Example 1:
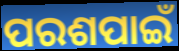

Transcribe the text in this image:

ପରଶପାଇଁ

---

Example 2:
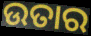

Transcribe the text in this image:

ଉତାର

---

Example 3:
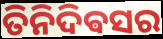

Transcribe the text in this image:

ତିନିଦିଵସର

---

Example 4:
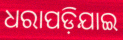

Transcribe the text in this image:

ଧରାପଡ଼ିଯାଇ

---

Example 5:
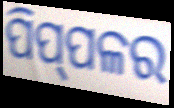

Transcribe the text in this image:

ପିପ୍‌ପଳର